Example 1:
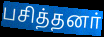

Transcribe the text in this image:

பசித்தனர்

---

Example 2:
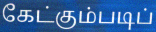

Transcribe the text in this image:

கேட்கும்படிப்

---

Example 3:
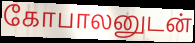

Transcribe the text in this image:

கோபாலனுடன்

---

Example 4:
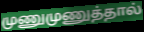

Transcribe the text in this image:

முணுமுணுத்தால்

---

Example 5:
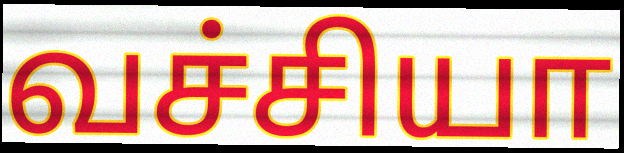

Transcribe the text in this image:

வச்சியா